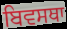
ਬਿਵਸਥਾ